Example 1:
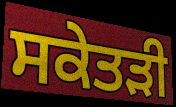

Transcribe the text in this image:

ਸਕੇਤੜੀ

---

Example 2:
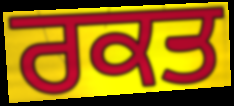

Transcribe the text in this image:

ਰਕਤ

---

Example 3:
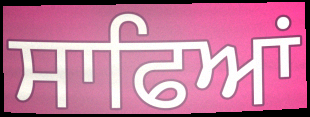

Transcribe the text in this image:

ਸਾਫਿਆਂ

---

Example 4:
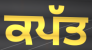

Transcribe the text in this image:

ਕਪੱਤ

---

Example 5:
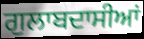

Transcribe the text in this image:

ਗੁਲਾਬਦਾਸੀਆਂ